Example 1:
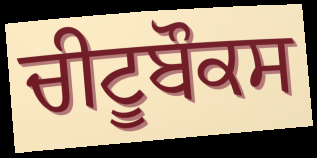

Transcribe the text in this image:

ਚੀਟੂਬੌਕਸ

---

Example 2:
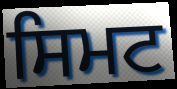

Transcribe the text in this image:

ਸਿਮਟ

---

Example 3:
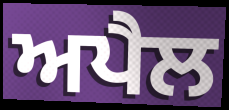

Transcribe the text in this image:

ਅਪੈਲ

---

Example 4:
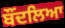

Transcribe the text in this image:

ਬੌਂਦਲਿਆ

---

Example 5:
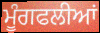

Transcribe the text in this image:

ਮੂੰਗਫਲੀਆਂ